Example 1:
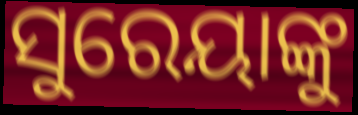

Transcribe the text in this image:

ସୁରେୟାଙ୍କୁ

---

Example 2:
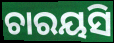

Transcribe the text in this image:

ଚାରୟସି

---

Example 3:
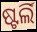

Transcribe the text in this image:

ଷ୍ଟର୍ଲି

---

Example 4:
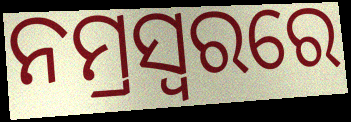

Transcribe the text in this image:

ନମ୍ରସ୍ୱରରେ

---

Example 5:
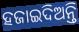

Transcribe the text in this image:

ହଜାଇଦିଅନ୍ତି